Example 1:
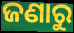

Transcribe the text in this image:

ଜଣାରୁ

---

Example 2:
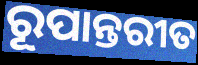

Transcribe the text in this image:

ରୂପାନ୍ତରୀତ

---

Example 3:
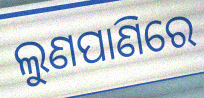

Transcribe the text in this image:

ଲୁଣପାଣିରେ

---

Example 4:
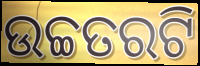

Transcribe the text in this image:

ଉଚ୍ଚତରଟି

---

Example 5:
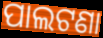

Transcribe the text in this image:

ପାଲଟଣା